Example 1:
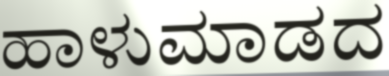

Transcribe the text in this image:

ಹಾಳುಮಾಡದ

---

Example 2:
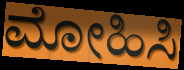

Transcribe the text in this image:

ಮೋಹಿಸಿ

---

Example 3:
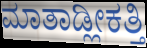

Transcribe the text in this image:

ಮಾತಾಡ್ಲೀಕತ್ತಿ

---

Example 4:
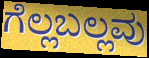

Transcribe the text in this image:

ಗೆಲ್ಲಬಲ್ಲವು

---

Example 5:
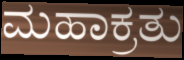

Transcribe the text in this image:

ಮಹಾಕ್ರತು